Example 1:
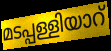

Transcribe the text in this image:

മടപ്പള്ളിയാറ്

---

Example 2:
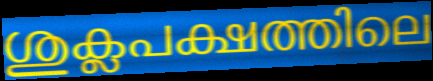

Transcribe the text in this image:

ശുക്ലപക്ഷത്തിലെ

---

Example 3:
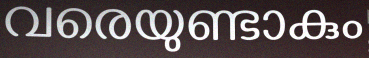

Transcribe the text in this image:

വരെയുണ്ടാകും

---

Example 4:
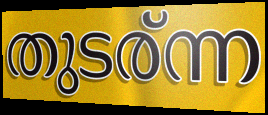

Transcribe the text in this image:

തുടര്ന്ന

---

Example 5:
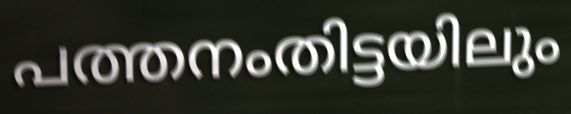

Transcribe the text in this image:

പത്തനംതിട്ടയിലും